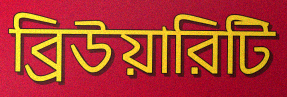
ব্রিউয়ারিটি